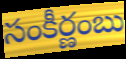
సంకీర్ణంబు